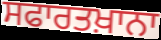
ਸਫਾਰਤਖ਼ਾਨਾ